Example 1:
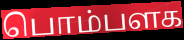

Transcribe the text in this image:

பொம்பளக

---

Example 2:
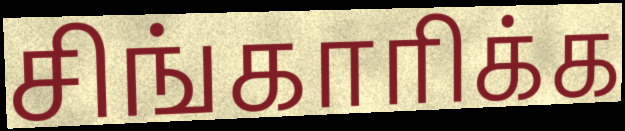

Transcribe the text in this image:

சிங்காரிக்க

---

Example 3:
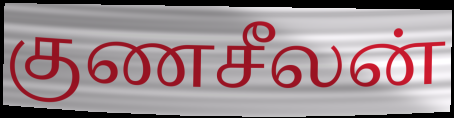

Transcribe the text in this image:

குணசீலன்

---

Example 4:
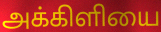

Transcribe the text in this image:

அக்கிளியை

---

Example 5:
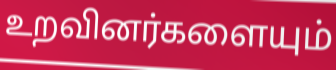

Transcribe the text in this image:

உறவினர்களையும்